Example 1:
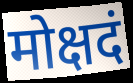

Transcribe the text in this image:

मोक्षदं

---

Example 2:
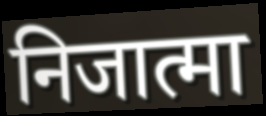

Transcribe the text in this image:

निजात्मा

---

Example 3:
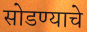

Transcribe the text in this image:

सोडण्याचे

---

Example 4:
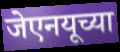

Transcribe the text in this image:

जेएनयूच्या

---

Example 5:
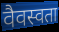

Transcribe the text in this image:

वैवस्वता